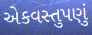
એકવસ્તુપણું